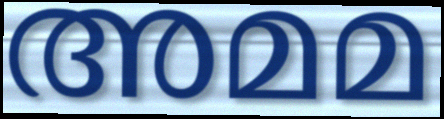
അമമ